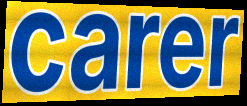
carer